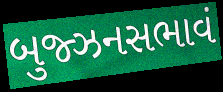
બુજ્ઝનસભાવં